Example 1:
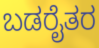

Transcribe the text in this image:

ಬಡರೈತರ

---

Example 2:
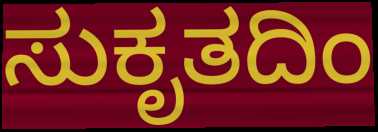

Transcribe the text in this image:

ಸುಕೃತದಿಂ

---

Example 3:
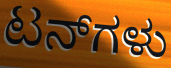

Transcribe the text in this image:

ಟನ್‌ಗಳು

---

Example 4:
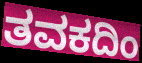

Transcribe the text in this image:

ತವಕದಿಂ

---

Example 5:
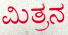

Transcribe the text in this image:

ಮಿತ್ರನ